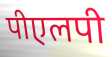
पीएलपी